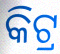
କିଟ୍ର